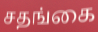
சதங்கை